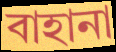
বাহানা